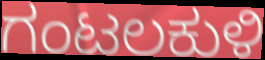
ಗಂಟಲಕುಳಿ